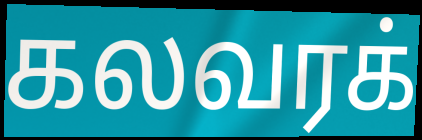
கலவரக்